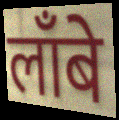
लाँबे